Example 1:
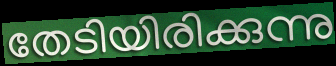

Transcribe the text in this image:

തേടിയിരിക്കുന്നു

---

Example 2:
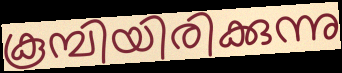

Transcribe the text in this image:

കൂമ്പിയിരിക്കുന്നു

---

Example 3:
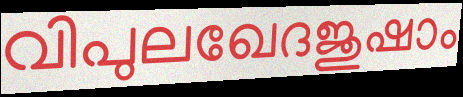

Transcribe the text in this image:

വിപുലഖേദജുഷാം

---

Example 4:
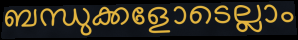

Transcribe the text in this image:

ബന്ധുക്കളോടെല്ലാം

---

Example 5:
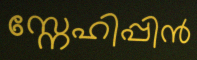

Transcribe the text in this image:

സ്നേഹിപ്പിൻ